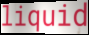
liquid